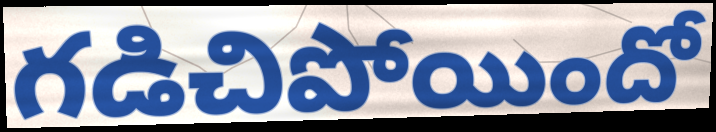
గడిచిపోయిందో